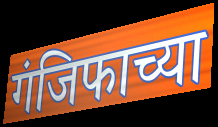
गंजिफाच्या